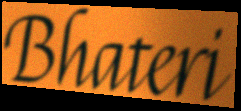
Bhateri